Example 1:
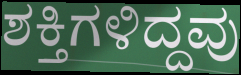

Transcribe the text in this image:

ಶಕ್ತಿಗಳಿದ್ದವು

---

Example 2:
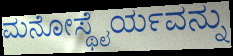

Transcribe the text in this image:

ಮನೋಸ್ಥೈರ್ಯವನ್ನು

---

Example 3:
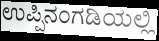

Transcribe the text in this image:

ಉಪ್ಪಿನಂಗಡಿಯಲ್ಲಿ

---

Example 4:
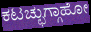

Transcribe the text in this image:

ಕಟಚ್ಛುಗ್ಗಾಹೋ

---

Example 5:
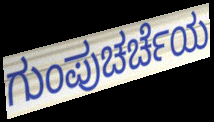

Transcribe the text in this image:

ಗುಂಪುಚರ್ಚೆಯ